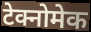
टेक्नोमेक